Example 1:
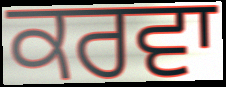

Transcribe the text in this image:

ਕਰਵਾ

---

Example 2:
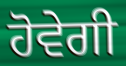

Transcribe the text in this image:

ਹੋਵੇਗੀ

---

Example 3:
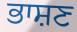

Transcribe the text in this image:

ਭਾਸ਼ਣ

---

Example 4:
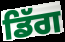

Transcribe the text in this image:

ਡਿੱਗ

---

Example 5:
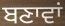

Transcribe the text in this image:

ਬਣਾਵਾਂ